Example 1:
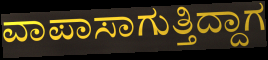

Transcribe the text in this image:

ವಾಪಾಸಾಗುತ್ತಿದ್ದಾಗ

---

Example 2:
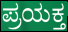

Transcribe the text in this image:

ಪ್ರಯಕ್ತ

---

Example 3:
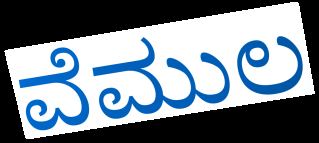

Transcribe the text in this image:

ವೆಮುಲ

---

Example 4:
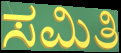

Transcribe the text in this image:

ಸಮಿತಿ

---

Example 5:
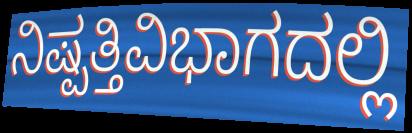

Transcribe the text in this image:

ನಿಷ್ಪತ್ತಿವಿಭಾಗದಲ್ಲಿ